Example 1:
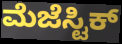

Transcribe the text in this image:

ಮೆಜೆಸ್ಟಿಕ್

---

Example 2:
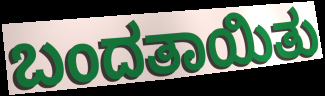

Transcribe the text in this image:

ಬಂದತಾಯಿತು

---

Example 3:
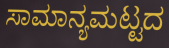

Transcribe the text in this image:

ಸಾಮಾನ್ಯಮಟ್ಟದ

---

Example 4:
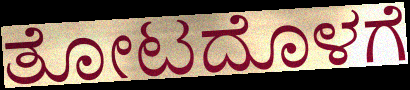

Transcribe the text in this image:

ತೋಟದೊಳಗೆ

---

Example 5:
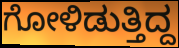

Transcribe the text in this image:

ಗೋಳಿಡುತ್ತಿದ್ದ